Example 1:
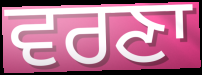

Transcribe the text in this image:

ਵਰਣਾ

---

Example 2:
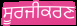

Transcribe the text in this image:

ਸੂਰਜੀਕਰਣ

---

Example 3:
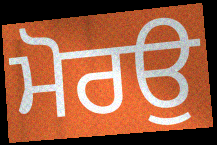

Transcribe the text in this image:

ਮੋਰਉ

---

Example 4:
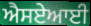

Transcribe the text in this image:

ਐਸਏਆਈ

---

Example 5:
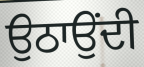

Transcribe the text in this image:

ਉਠਾਉਂਦੀ